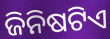
ଜିନିଷଟିଏ